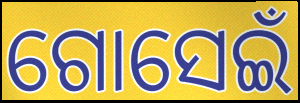
ଗୋସେଇଁ